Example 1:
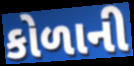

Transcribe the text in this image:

કોળાની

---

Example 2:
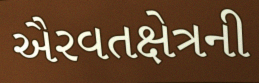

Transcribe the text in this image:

ઐરવતક્ષેત્રની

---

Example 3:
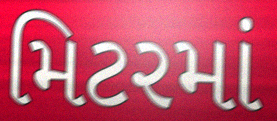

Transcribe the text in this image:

મિટરમાં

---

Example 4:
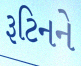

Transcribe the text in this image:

રૂટિનને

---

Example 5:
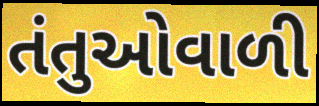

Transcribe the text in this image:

તંતુઓવાળી